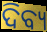
ଦିବ୍ୟ